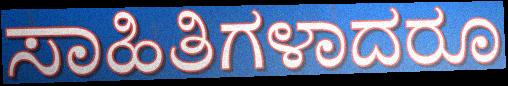
ಸಾಹಿತಿಗಳಾದರೂ